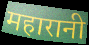
महारानी